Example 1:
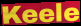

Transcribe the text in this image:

Keele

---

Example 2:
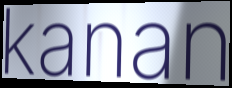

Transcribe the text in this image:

kanan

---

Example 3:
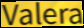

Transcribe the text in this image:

Valera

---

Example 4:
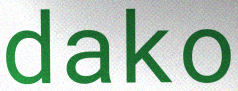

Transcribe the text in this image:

dako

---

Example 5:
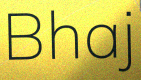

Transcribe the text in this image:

Bhaj